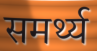
समर्थ्य